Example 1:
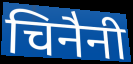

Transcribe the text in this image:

चिनैनी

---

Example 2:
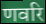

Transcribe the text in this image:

णवरि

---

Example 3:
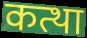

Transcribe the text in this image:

कत्था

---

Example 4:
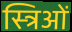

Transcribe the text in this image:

स्त्रिओं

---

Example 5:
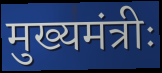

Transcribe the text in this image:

मुख्यमंत्रीः